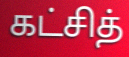
கட்சித்